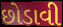
છોડાવી